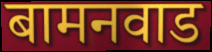
बामनवाड